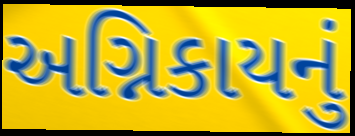
અગ્નિકાયનું